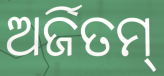
ଅର୍ଜିତମ୍